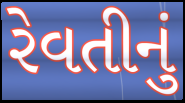
રેવતીનું